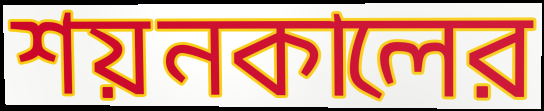
শয়নকালের